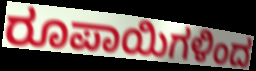
ರೂಪಾಯಿಗಳಿಂದ